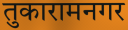
तुकारामनगर